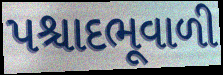
પશ્ચાદભૂવાળી